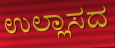
ಉಲ್ಲಾಸದ